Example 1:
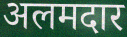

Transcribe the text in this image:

अलमदार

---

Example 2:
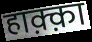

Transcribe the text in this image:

हाक़्क़ा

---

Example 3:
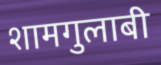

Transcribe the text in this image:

शामगुलाबी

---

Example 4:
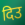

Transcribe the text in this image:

दिउ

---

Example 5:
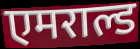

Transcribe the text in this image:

एमराल्ड